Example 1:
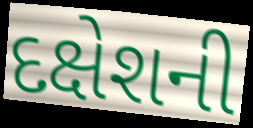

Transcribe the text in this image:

દક્ષેશની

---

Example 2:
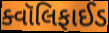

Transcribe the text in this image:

ક્વૉલિફાઈડ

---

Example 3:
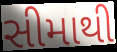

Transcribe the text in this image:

સીમાથી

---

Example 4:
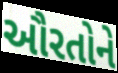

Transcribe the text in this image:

ઔરતોને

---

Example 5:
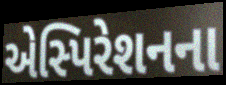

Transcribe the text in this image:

એસ્પિરેશનના